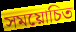
সময়োচিত